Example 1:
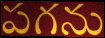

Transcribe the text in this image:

పగను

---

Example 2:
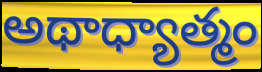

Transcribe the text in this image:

అథాధ్యాత్మం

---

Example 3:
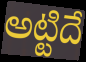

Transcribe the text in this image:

అట్టిదే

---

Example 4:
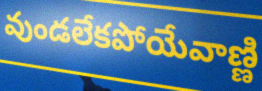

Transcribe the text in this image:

వుండలేకపోయేవాణ్ణి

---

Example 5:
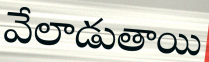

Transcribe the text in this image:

వేలాడుతాయి